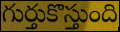
గుర్తుకొస్తుంది